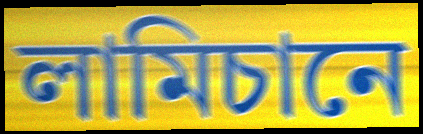
লামিচানে